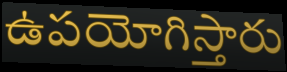
ఉపయోగిస్తారు